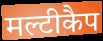
मल्‍टीकैप